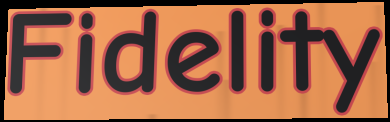
Fidelity